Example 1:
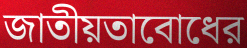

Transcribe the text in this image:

জাতীয়তাবোধের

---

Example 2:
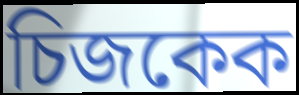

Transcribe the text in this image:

চিজকেক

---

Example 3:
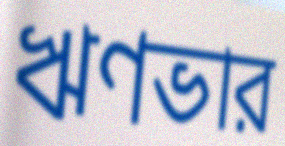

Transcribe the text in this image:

ঋণভার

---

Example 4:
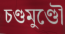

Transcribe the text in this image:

চণ্ডমুণ্ডৌ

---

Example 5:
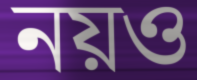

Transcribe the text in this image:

নয়ও